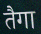
तैगा